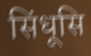
सिंधूसि